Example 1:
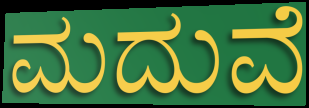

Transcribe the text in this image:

ಮದುವೆ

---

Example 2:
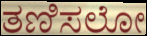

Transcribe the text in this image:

ತಣಿಸಲೋ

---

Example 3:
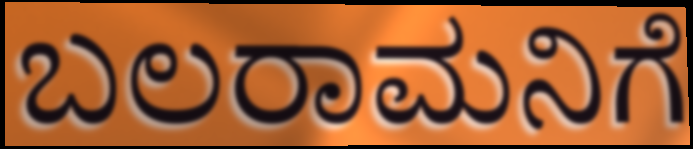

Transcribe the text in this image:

ಬಲರಾಮನಿಗೆ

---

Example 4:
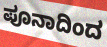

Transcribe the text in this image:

ಪೂನಾದಿಂದ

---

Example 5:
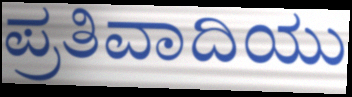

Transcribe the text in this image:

ಪ್ರತಿವಾದಿಯು